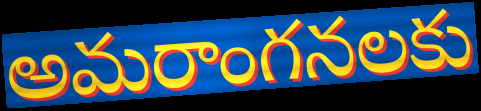
అమరాంగనలకు